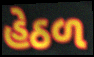
હેઠળ